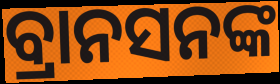
ବ୍ରାନସନଙ୍କ